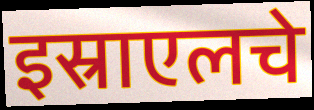
इस्राएलचे